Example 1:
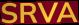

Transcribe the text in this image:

SRVA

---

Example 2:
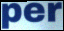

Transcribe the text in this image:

per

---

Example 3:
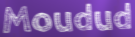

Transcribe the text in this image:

Moudud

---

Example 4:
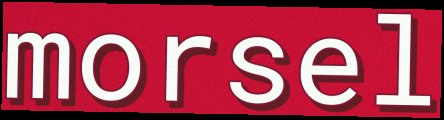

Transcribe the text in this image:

morsel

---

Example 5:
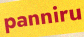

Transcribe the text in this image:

panniru